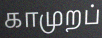
காமுறப்